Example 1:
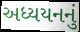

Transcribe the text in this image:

અધ્યયનનું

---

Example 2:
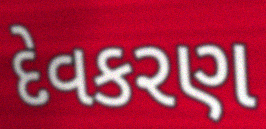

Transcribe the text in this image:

દેવકરણ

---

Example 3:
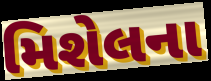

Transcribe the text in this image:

મિશેલના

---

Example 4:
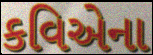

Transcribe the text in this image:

કવિએના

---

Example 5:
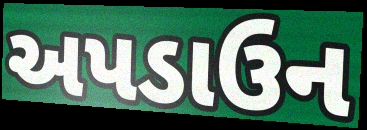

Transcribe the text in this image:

અપડાઉન